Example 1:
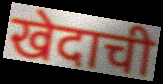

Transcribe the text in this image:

खेदाची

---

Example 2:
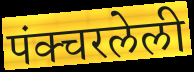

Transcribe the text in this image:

पंक्चरलेली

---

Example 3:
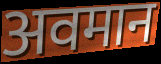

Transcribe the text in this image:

अवमान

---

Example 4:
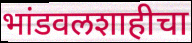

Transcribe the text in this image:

भांडवलशाहीचा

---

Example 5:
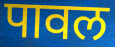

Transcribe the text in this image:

पावल